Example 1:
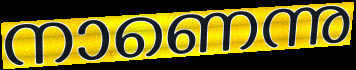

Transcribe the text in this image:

നാണെന്നു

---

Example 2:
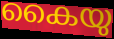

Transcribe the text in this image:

കൈയു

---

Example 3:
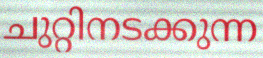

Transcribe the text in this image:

ചുറ്റിനടക്കുന്ന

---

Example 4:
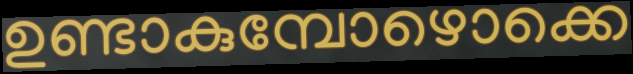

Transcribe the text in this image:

ഉണ്ടാകുമ്പോഴൊക്കെ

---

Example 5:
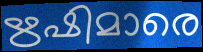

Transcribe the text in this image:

ഋഷിമാരെ